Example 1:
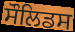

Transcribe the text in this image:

ਸੌਲਿਡਸ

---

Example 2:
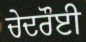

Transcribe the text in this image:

ਚੇਦਰੌਈ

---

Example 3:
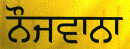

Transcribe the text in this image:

ਨੌਜਵਾਨਾ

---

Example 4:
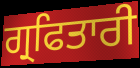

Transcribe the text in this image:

ਗ੍ਰਫਿਤਾਰੀ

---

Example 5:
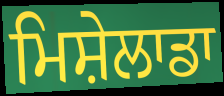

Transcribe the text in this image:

ਮਿਸ਼ੇਲਾਡਾ